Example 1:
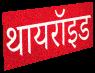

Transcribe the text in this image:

थायरॉइड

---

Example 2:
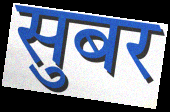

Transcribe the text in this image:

सुबर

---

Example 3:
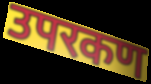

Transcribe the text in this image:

उपरकण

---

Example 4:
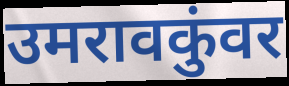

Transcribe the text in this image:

उमरावकुंवर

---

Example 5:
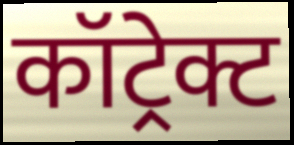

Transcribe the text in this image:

कॉट्रेक्ट